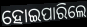
ହୋଇପାରିଲେ